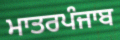
ਮਾਤਰਪੰਜਾਬ